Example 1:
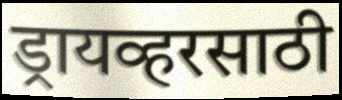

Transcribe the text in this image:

ड्रायव्हरसाठी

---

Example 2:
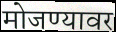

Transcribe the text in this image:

मोजण्यावर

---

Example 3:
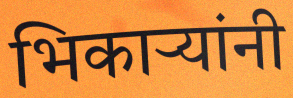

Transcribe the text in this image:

भिकाऱ्यांनी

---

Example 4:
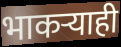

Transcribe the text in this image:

भाकऱ्याही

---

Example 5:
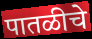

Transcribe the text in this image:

पातळीचे